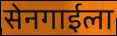
सेनगाईला